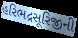
હરિભદ્રસૂરિજીની